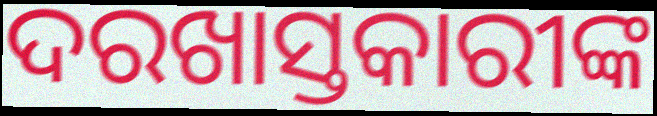
ଦରଖାସ୍ତକାରୀଙ୍କ